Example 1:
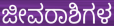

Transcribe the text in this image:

ಜೀವರಾಶಿಗಳ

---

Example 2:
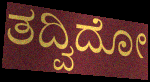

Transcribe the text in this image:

ತದ್ವಿದೋ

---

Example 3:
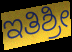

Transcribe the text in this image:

ಇತಿಶ್ರೀ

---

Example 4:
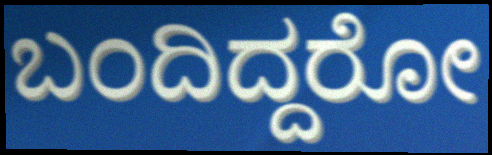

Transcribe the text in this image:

ಬಂದಿದ್ದರೋ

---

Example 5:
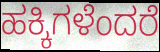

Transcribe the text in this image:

ಹಕ್ಕಿಗಳೆಂದರೆ